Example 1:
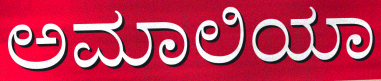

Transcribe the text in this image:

ಅಮಾಲಿಯಾ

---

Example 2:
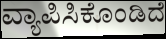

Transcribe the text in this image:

ವ್ಯಾಪಿಸಿಕೊಂಡಿದೆ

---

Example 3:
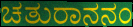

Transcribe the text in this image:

ಚತುರಾನನಂ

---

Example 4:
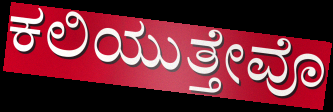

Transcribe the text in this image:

ಕಲಿಯುತ್ತೇವೊ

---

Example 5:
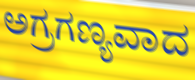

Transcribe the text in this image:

ಅಗ್ರಗಣ್ಯವಾದ